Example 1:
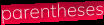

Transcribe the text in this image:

parentheses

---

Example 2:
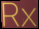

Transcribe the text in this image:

Rx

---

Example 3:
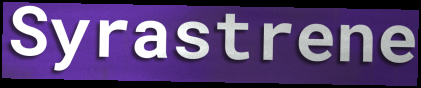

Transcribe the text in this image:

Syrastrene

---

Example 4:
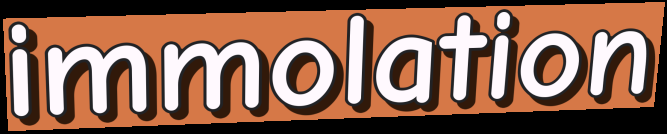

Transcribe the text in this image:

immolation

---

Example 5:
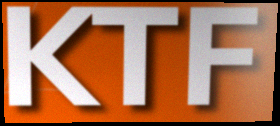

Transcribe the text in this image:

KTF